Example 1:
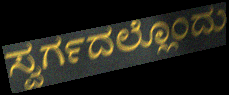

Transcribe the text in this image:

ಸ್ವರ್ಗದಲ್ಲೊಂದು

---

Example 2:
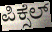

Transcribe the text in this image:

ಪಿಕ್ಸೆಲ್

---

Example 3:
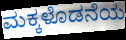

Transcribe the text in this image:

ಮಕ್ಕಳೊಡನೆಯ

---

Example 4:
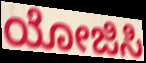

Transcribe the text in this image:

ಯೋಜಿಸಿ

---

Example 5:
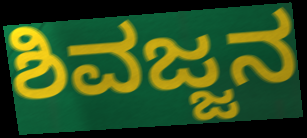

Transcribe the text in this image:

ಶಿವಜ್ಜನ